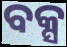
ବକ୍ସ